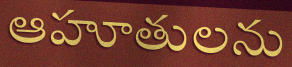
ఆహూతులను